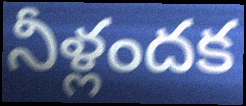
నీళ్లందక